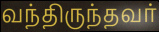
வந்திருந்தவர்